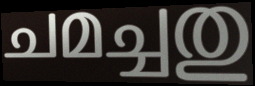
ചമച്ചതു